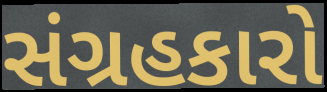
સંગ્રહકારો